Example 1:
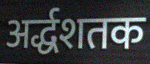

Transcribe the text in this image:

अर्द्धशतक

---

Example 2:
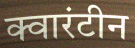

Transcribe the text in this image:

क्वारंटीन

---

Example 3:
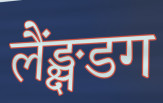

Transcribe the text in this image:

लैंङ्क्षडग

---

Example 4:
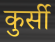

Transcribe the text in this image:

कुर्सी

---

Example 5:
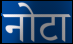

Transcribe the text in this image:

नोटा